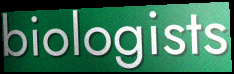
biologists